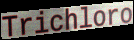
Trichloro